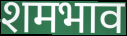
शमभाव